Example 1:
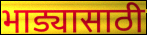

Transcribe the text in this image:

भाड्यासाठी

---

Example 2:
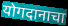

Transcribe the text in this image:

योगदानाचा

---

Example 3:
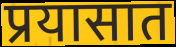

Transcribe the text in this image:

प्रयासात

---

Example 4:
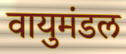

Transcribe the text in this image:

वायुमंडल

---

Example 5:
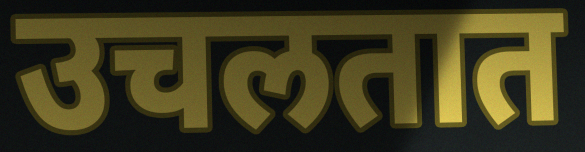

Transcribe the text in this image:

उचलतात